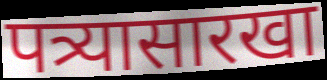
पत्र्यासारखा